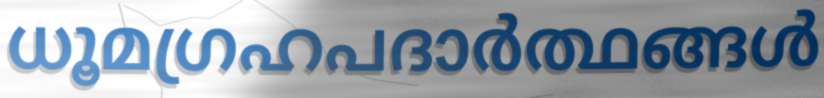
ധൂമഗ്രഹപദാർത്ഥങ്ങൾ